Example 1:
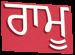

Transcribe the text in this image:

ਰਾਮੂ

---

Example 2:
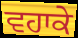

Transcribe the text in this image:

ਵਹਾਕੇ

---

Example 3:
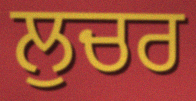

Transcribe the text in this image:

ਲੁਚਰ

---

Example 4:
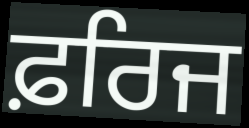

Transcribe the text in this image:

ਫ਼ਰਿਜ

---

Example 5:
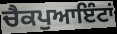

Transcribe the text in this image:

ਚੈਕਪੁਆਇੰਟਾਂ